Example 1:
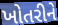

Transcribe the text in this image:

ખોતરીને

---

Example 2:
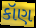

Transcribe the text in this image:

કૉણ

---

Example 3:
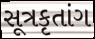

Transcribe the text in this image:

સૂત્રકૃતાંગ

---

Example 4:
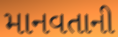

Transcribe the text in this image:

માનવતાની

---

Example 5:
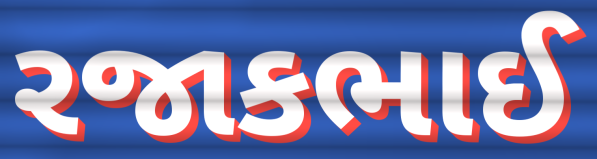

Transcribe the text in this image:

રજાકભાઈ